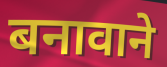
बनावाने